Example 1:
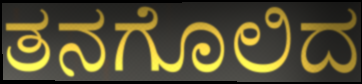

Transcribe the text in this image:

ತನಗೊಲಿದ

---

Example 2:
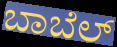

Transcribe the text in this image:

ಬಾಬೆಲ್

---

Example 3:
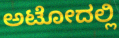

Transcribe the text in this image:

ಅಟೋದಲ್ಲಿ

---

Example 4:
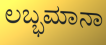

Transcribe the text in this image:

ಲಬ್ಭಮಾನಾ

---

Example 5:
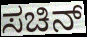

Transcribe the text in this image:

ಸಚಿನ್